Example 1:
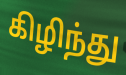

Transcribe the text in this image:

கிழிந்து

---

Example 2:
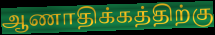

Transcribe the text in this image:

ஆணாதிக்கத்திற்கு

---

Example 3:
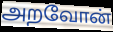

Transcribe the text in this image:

அறவோன்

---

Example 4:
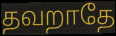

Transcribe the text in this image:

தவறாதே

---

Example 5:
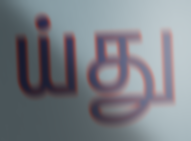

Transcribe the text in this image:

ய்து